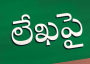
లేఖపై